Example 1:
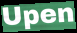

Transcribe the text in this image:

Upen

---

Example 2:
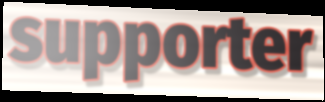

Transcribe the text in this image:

supporter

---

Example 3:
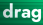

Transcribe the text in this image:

drag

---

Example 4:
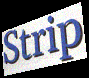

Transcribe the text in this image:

Strip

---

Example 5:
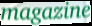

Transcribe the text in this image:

magazine